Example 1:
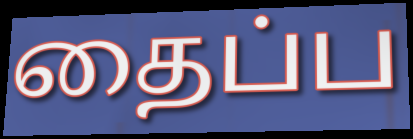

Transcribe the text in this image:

தைப்ப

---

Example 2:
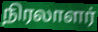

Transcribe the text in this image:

நிரலாளர்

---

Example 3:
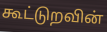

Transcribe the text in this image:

கூட்டுறவின்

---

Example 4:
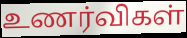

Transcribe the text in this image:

உணர்விகள்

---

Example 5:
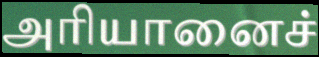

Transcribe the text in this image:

அரியானைச்